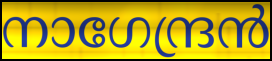
നാഗേന്ദ്രൻ